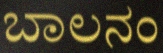
ಬಾಲನಂ